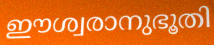
ഈശ്വരാനുഭൂതി